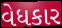
વેધકાર